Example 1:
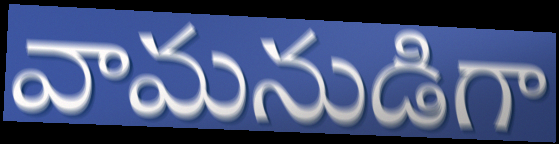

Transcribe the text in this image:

వామనుడిగా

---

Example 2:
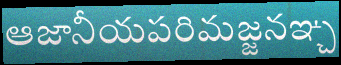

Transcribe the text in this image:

ఆజానీయపరిమజ్జనఞ్చ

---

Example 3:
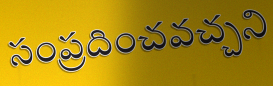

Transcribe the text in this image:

సంప్రదించవచ్చని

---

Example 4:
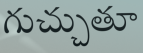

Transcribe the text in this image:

గుచ్చుతూ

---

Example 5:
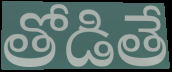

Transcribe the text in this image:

తోడితే